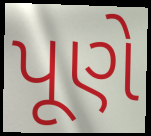
પૂણે